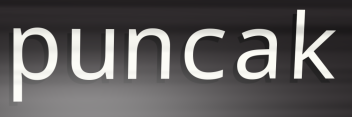
puncak